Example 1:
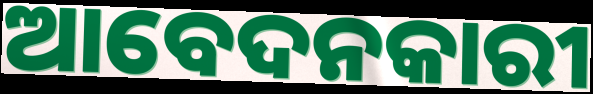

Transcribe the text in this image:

ଆବେଦନକାରୀ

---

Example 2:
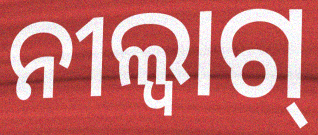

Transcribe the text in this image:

ନୀଲ୍ବାଗ୍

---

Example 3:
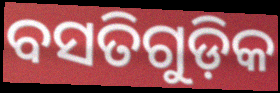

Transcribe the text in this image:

ବସତିଗୁଡ଼ିକ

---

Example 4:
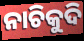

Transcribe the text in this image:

ନାଚିକୁଦି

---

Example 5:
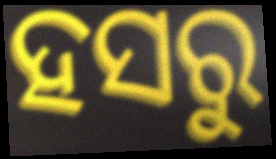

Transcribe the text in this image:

ହସରୁ